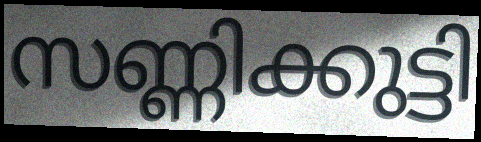
സണ്ണിക്കുട്ടി